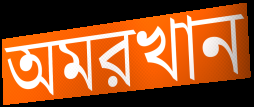
অমরখান